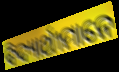
ବିଦ୍ୟାର୍ଥୀମାନେ